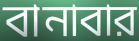
বানাবার